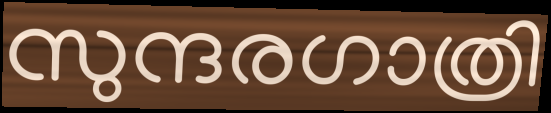
സുന്ദരഗാത്രി